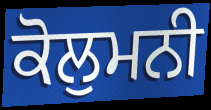
ਕੋਲੁਮਨੀ